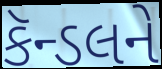
કૅન્ડલને